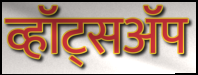
व्हॉट्सॲप